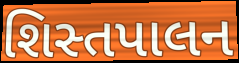
શિસ્તપાલન